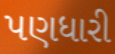
પણધારી